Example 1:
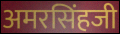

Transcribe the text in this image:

अमरसिंहजी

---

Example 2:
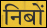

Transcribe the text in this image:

निबों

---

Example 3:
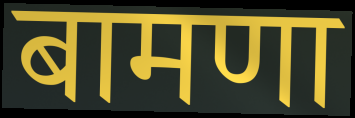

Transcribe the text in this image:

बामणा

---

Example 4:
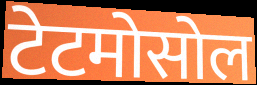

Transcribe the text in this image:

टेटमोसोल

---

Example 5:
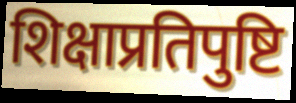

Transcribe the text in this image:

शिक्षाप्रतिपुष्टि